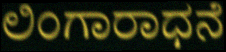
ಲಿಂಗಾರಾಧನೆ